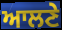
ਆਲਣੇ